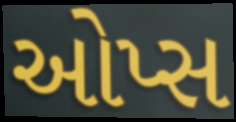
ઓપ્સ